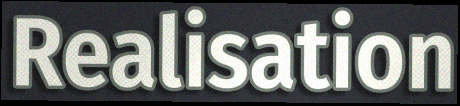
Realisation